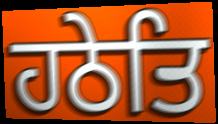
ਹਠੇਤਿ